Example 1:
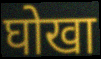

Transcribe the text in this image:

घोखा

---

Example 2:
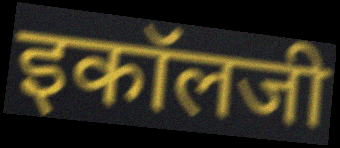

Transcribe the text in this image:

इकॉलजी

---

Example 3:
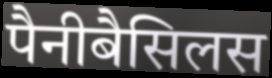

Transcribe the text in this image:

पैनीबैसिलस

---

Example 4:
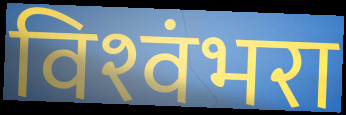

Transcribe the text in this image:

विश्वंभरा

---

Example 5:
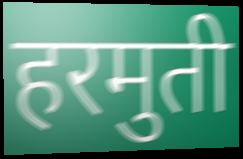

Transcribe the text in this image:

हरमुती